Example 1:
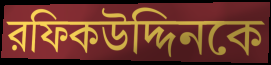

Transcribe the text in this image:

রফিকউদ্দিনকে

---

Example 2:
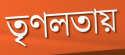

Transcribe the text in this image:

তৃণলতায়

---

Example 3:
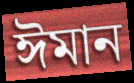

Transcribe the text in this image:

ঈমান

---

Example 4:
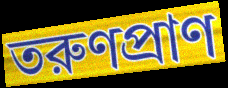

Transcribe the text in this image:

তরুণপ্রাণ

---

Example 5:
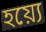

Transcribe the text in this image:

হয়্যে